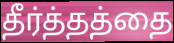
தீர்த்தத்தை